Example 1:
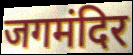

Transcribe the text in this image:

जगमंदिर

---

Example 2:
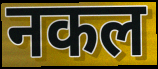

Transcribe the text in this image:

नकल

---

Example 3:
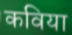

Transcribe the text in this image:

कविया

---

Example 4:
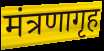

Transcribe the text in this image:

मंत्रणागृह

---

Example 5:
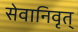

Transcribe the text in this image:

सेवानिवृत्